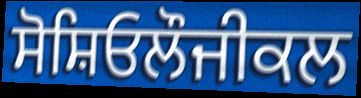
ਸੋਸ਼ਿਓਲੌਜੀਕਲ